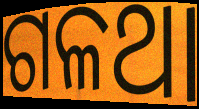
ଗଳଥା